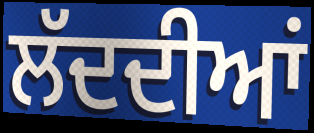
ਲੱਦਦੀਆਂ